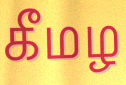
கீமழ